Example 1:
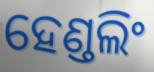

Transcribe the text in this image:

ହେଣ୍ଡଲିଂ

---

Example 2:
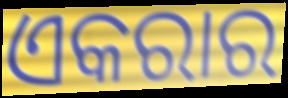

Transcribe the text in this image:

ଏକରାର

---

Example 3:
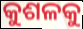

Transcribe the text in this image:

କୁଶଳକୁ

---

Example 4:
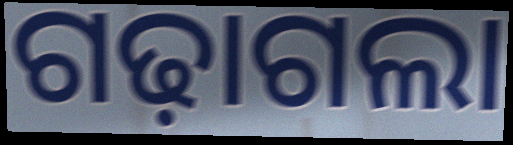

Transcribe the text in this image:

ଗଢ଼ାଗଲା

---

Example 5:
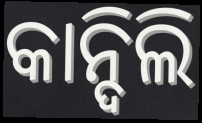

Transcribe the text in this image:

କାନ୍ଦିଲି